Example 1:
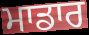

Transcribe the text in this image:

ਮਾਡਾਰ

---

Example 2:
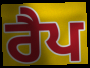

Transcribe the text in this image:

ਰੈਪ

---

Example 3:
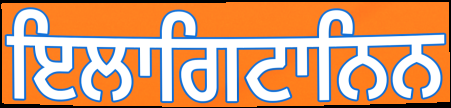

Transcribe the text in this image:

ਇਲਾਗਿਟਾਨਿਨ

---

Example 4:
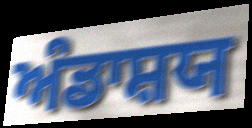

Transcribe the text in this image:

ਅੰਡਾਸ਼ਯ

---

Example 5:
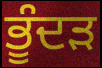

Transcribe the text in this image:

ਭੂੰਦੜ